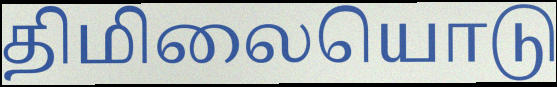
திமிலையொடு